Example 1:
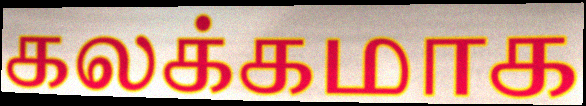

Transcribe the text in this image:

கலக்கமாக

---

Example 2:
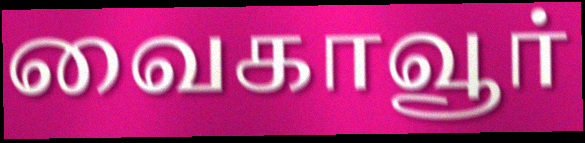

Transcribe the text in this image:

வைகாவூர்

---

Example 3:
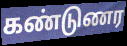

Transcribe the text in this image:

கண்டுணர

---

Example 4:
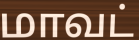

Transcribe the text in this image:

மாவட்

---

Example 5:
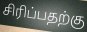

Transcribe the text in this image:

சிரிப்பதற்கு